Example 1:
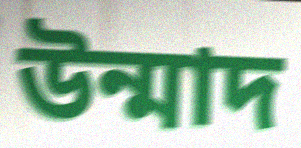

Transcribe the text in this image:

উন্মাদ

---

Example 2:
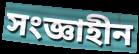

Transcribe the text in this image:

সংজ্ঞাহীন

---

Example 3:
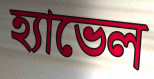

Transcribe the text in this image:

হ্যাভেল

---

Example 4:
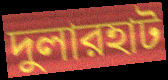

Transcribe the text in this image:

দুলারহাট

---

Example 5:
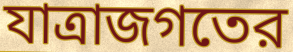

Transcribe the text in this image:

যাত্রাজগতের